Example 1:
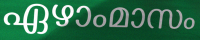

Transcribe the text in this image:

ഏഴാംമാസം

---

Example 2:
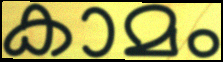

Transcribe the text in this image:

കാമം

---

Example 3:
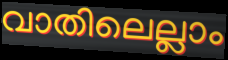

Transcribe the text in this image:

വാതിലെല്ലാം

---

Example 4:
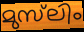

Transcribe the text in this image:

മുസ്‌ലിം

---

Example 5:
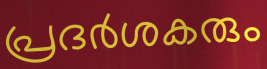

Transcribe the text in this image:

പ്രദർശകരും